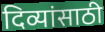
दिव्यांसाठी